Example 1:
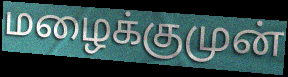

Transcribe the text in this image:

மழைக்குமுன்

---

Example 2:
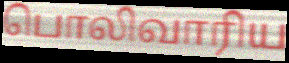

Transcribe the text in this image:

பொலிவாரிய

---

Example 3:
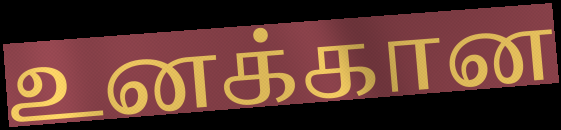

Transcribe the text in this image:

உனக்கான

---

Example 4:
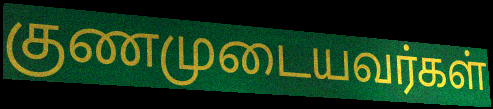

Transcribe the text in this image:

குணமுடையவர்கள்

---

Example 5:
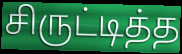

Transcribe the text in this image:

சிருட்டித்த